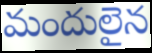
మందులైన